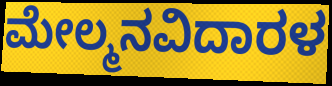
ಮೇಲ್ಮನವಿದಾರಳ